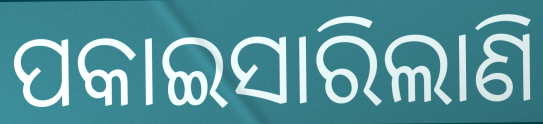
ପକାଇସାରିଲାଣି